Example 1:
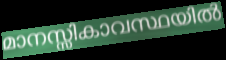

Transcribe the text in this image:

മാനസ്സികാവസ്ഥയിൽ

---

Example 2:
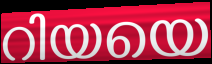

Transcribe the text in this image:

റിയയെ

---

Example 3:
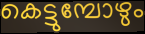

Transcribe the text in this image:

കെട്ടുമ്പോഴും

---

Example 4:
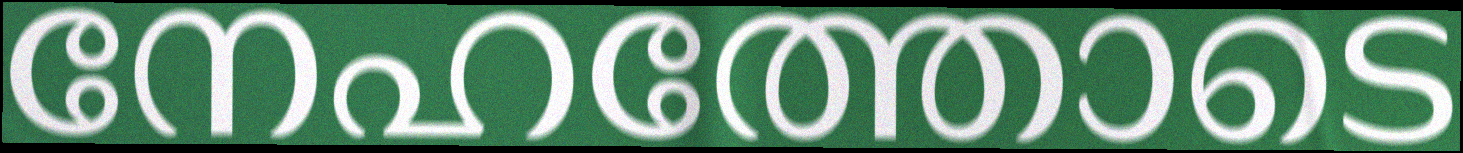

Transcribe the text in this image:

നേഹത്തോടെ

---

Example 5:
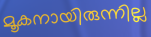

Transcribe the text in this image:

മൂകനായിരുന്നില്ല